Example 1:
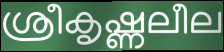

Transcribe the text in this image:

ശ്രീകൃഷ്ണലീല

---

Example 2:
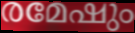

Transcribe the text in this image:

രമേഷും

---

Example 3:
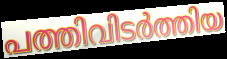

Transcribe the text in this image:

പത്തിവിടർത്തിയ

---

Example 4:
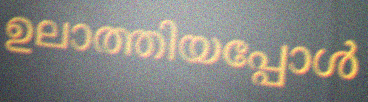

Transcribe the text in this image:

ഉലാത്തിയപ്പോൾ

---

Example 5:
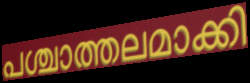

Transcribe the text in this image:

പശ്ചാത്തലമാക്കി